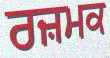
ਰਜ਼ਮਕ